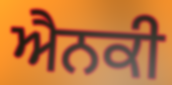
ਐਨਕੀ